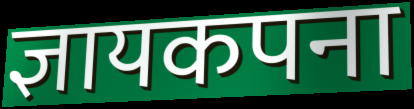
ज्ञायकपना